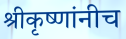
श्रीकृष्णांनीच